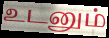
உடனும்